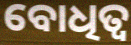
ବୋଧିତ୍ୱ